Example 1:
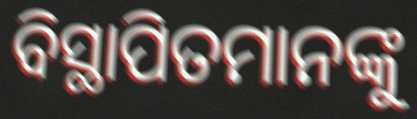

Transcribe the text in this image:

ବିସ୍ଥାପିତମାନଙ୍କୁ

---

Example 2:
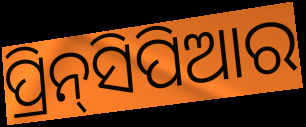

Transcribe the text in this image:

ପ୍ରିନ୍‌ସିପିଆର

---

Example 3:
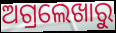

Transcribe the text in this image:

ଅଗ୍ରଲେଖାରୁ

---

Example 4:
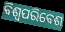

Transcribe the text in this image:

ବିଶ୍ୱପରିବେଶ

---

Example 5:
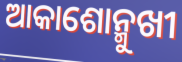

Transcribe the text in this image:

ଆକାଶୋନ୍ମୁଖୀ